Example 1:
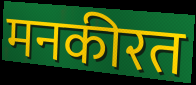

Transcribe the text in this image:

मनकीरत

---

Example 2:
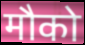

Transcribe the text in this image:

मौको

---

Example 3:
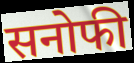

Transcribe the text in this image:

सनोफी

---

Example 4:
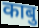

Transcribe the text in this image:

काबु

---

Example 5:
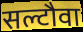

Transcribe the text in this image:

सल्टौवा